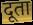
दूता